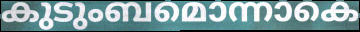
കുടുംബമൊന്നാകെ